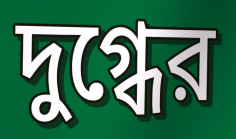
দুগ্ধের